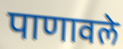
पाणावले